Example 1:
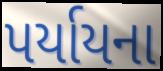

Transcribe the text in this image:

પર્યાયના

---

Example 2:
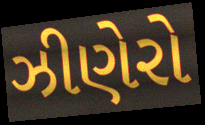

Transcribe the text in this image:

ઝીણેરો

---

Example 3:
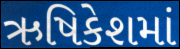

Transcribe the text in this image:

ઋષિકેશમાં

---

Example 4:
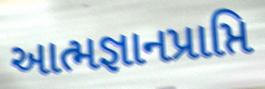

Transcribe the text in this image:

આત્મજ્ઞાનપ્રાપ્તિ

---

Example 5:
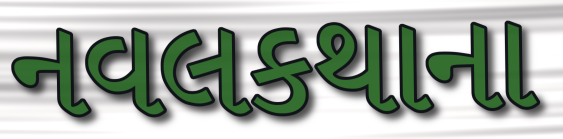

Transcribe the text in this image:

નવલકથાના